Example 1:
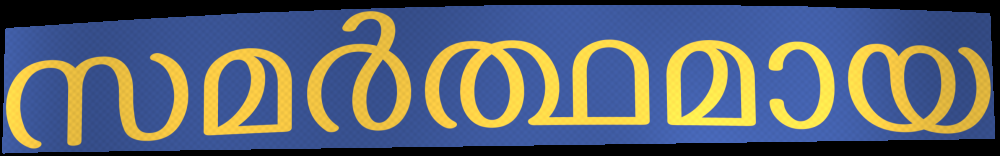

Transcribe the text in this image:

സമർത്ഥമായ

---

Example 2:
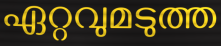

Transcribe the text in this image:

ഏറ്റവുമടുത്ത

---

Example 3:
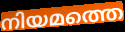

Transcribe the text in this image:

നിയമത്തെ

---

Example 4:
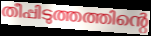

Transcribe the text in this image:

തീപ്പിടുത്തത്തിന്റെ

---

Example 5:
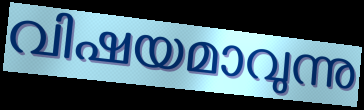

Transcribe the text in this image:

വിഷയമാവുന്നു